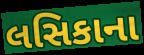
લસિકાના